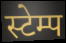
स्टेम्प